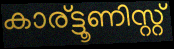
കാര്ട്ടൂണിസ്റ്റ്